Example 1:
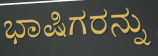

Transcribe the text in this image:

ಭಾಷಿಗರನ್ನು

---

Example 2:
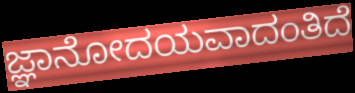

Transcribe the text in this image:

ಜ್ಞಾನೋದಯವಾದಂತಿದೆ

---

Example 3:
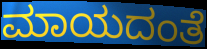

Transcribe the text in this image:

ಮಾಯದಂತೆ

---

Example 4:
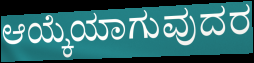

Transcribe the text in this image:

ಆಯ್ಕೆಯಾಗುವುದರ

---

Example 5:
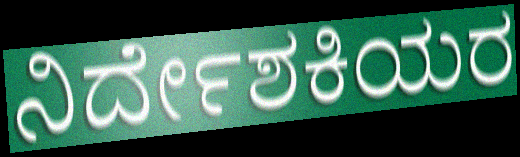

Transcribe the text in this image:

ನಿರ್ದೇಶಕಿಯರ